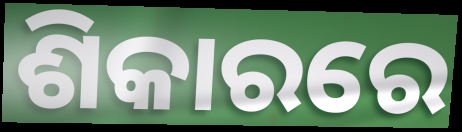
ଶିକାରରେ